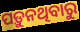
ପଡ଼ୁନଥିବାରୁ